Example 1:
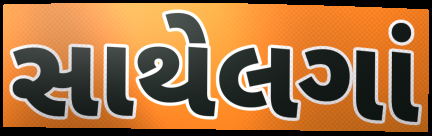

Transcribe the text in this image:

સાથેલગાં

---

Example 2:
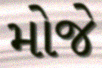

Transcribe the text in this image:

મોજે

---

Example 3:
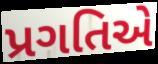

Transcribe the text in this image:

પ્રગતિએ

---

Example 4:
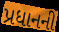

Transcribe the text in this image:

પ્રધાનની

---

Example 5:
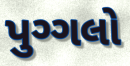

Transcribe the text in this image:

પુગ્ગલો